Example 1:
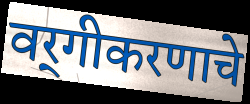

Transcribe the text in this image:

वर्गीकरणाचे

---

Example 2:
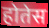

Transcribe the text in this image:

होतेस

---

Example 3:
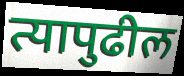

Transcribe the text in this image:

त्यापुढील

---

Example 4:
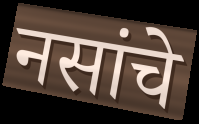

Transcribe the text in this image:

नसांचे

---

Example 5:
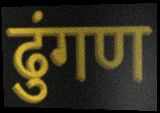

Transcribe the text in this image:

ढुंगण